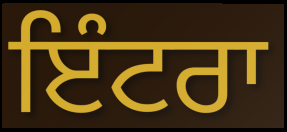
ਇੰਟਰਾ